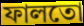
ফালতো